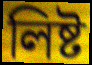
লিষ্ট